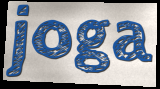
joga